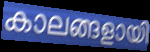
കാലങ്ങളായി